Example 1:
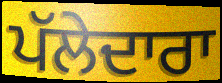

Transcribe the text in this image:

ਪੱਲੇਦਾਰਾ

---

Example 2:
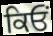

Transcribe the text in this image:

ਕਿਓਂ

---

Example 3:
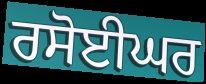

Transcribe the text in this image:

ਰਸੋਈਘਰ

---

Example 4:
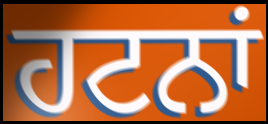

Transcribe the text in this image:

ਹਟਨਾਂ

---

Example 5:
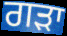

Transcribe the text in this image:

ਗੜਾ